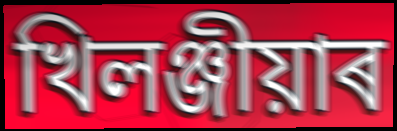
খিলঞ্জীয়াৰ